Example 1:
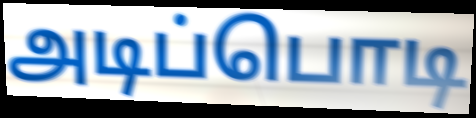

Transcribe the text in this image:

அடிப்பொடி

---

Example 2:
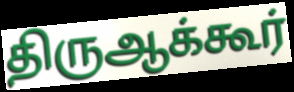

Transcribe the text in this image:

திருஆக்கூர்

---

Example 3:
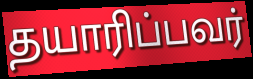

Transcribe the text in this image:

தயாரிப்பவர்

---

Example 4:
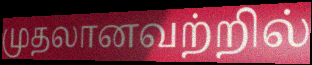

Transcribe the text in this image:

முதலானவற்றில்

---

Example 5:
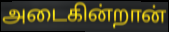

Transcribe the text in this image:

அடைகின்றான்